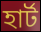
হাৰ্ট